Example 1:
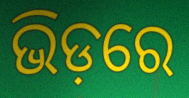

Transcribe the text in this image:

ଭିଡ଼ରେ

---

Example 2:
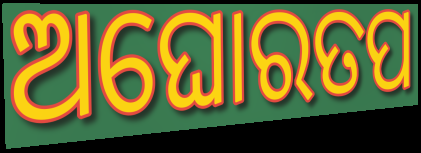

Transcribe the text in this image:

ଅଘୋରତପ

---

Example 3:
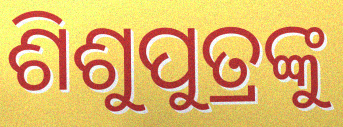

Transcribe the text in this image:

ଶିଶୁପୁତ୍ରଙ୍କୁ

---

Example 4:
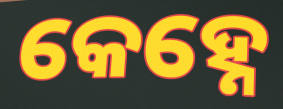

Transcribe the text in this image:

କେହ୍ନେ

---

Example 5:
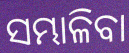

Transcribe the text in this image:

ସମ୍ଭାଳିବା